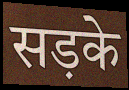
सड़के